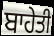
ਬਾਹੇਤੀ